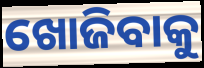
ଖୋଜିବାକୁ